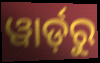
ୱାର୍ଡ଼ରୁ